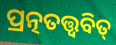
ପ୍ରତ୍ନତତ୍ତ୍ଵବିତ୍